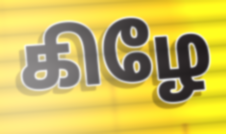
கிழே